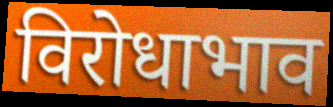
विरोधाभाव